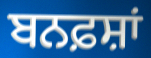
ਬਨਫ਼ਸ਼ਾਂ